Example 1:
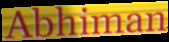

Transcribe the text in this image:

Abhiman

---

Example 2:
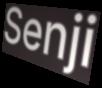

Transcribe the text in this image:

Senji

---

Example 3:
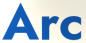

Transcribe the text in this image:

Arc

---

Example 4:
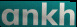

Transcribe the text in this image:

ankh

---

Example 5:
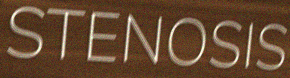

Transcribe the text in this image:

STENOSIS